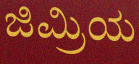
ಜಿಮ್ರಿಯ